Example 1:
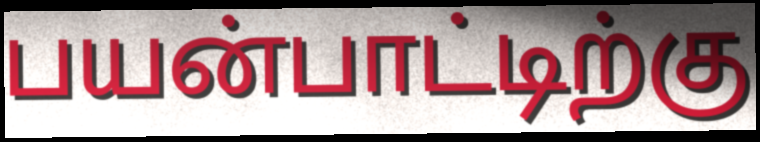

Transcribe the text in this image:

பயன்பாட்டிற்கு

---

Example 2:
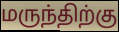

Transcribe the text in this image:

மருந்திற்கு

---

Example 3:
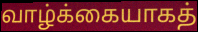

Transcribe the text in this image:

வாழ்க்கையாகத்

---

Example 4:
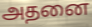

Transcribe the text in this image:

அதனை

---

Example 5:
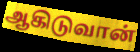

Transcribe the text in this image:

ஆகிடுவான்